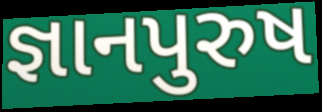
જ્ઞાનપુરુષ